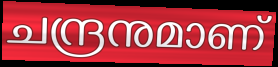
ചന്ദ്രനുമാണ്